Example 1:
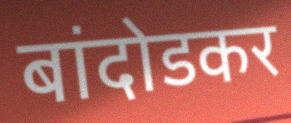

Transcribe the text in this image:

बांदोडकर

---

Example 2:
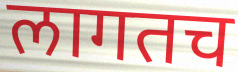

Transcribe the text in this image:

लागतच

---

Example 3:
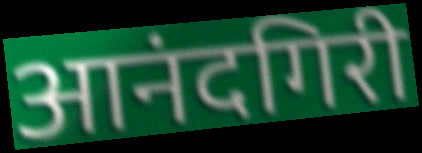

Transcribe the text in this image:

आनंदगिरी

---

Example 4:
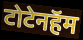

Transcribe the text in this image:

टोटेनहॅम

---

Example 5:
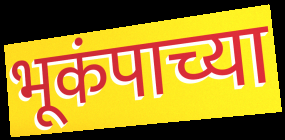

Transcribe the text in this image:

भूकंपाच्या